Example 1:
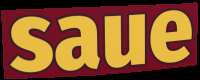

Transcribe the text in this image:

saue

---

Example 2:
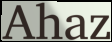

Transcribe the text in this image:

Ahaz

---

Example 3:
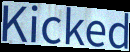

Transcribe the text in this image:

Kicked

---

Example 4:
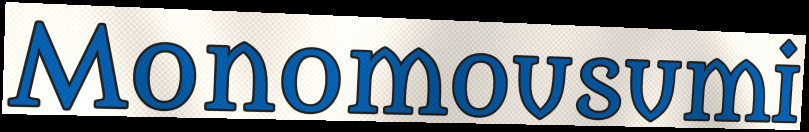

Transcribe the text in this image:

Monomousumi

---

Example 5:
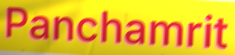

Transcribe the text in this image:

Panchamrit